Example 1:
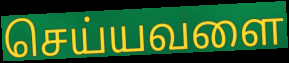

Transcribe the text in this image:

செய்யவளை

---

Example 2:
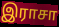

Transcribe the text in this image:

இராசா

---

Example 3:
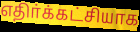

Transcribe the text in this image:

எதிர்க்கட்சியாக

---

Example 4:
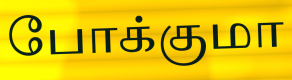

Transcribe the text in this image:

போக்குமா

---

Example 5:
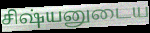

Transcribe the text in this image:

சிஷ்யனுடைய